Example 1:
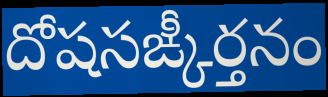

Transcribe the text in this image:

దోషసఙ్కీర్తనం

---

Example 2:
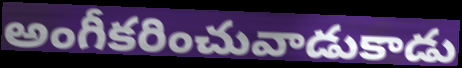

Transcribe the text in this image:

అంగీకరించువాడుకాడు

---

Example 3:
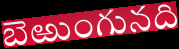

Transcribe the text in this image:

బెఱుంగునది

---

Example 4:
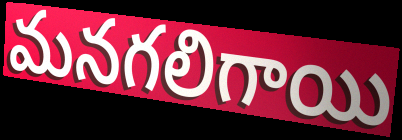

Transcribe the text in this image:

మనగలిగాయి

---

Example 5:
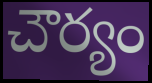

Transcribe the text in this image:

చౌర్యం